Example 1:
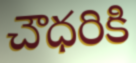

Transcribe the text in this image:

చౌధరికి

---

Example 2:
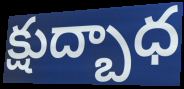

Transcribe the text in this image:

క్షుద్బాధ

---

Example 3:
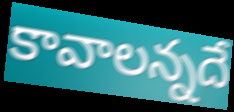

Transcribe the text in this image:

కావాలన్నదే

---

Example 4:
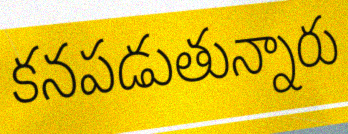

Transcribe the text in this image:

కనపడుతున్నారు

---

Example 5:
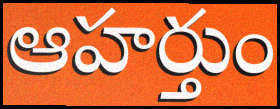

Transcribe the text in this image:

ఆహర్తుం